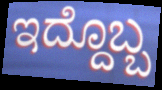
ಇದ್ದೊಬ್ಬ